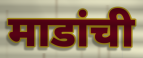
माडांची